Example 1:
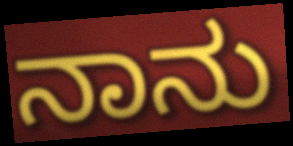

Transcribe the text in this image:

ನಾನು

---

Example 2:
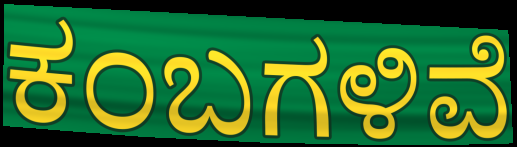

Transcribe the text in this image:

ಕಂಬಗಳಿವೆ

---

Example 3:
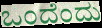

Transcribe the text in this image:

ಒಂದೆಂದು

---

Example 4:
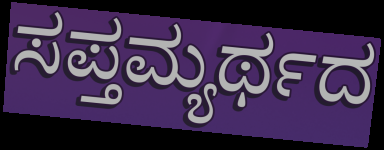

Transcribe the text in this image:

ಸಪ್ತಮ್ಯರ್ಥದ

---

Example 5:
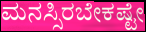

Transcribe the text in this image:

ಮನಸ್ಸಿರಬೇಕಷ್ಟೇ